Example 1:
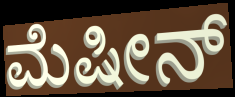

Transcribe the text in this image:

ಮೆಷೀನ್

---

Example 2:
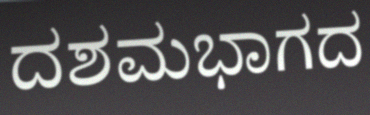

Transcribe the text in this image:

ದಶಮಭಾಗದ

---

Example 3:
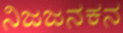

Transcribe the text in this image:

ನಿಜಜನಕನ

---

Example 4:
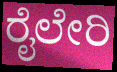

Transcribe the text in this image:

ರೈಲೇರಿ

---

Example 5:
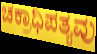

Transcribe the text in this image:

ಚಕ್ರಾಧಿಪತ್ಯವು